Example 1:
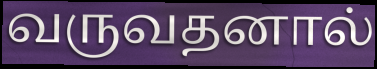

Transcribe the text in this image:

வருவதனால்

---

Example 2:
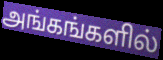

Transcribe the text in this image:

அங்கங்களில்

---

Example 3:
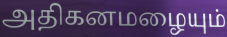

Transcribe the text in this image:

அதிகனமழையும்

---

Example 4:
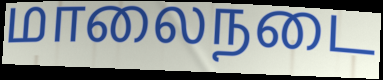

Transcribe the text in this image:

மாலைநடை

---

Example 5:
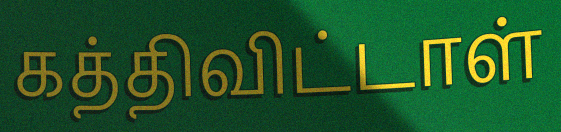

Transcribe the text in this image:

கத்திவிட்டாள்